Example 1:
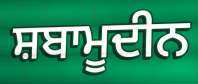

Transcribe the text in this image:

ਸ਼ਬਾਮੂਦੀਨ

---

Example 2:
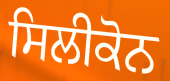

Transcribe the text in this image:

ਸਿਲੀਕੋਨ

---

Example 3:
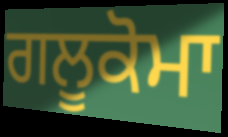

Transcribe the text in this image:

ਗਲੂਕੋਮਾ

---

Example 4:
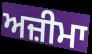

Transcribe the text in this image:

ਅਜ਼ੀਮਾ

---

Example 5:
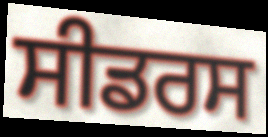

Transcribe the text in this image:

ਸੀਡਰਸ